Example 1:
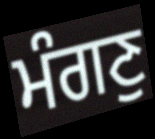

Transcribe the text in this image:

ਮੰਗਣੁ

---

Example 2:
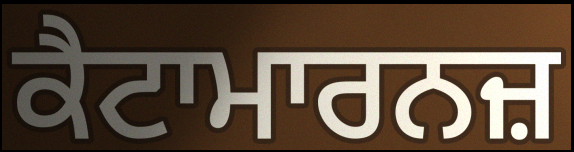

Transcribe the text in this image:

ਕੈਟਾਮਾਰਨਜ਼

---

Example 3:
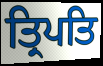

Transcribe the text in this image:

ਤ੍ਰਿਪਤਿ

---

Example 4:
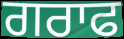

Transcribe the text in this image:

ਗਰਾਫ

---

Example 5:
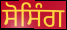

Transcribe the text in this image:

ਸੋਸਿੰਗ